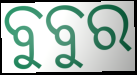
ବୁବୁର